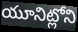
యూనిట్లోని